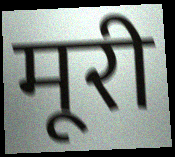
मूरी